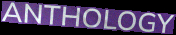
ANTHOLOGY